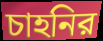
চাহনির